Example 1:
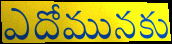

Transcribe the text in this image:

ఎదోమునకు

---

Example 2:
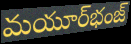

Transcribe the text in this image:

మయూర్‌భంజ్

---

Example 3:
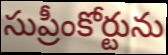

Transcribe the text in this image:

సుప్రీంకోర్టును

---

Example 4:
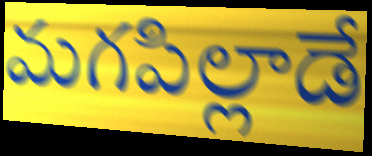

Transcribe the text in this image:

మగపిల్లాడే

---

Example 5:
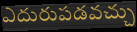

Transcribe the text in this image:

ఎదురుపడవచ్చు